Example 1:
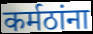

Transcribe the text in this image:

कर्मठांना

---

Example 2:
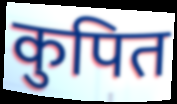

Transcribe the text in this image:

कुपित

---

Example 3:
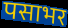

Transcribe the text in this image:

पसाभर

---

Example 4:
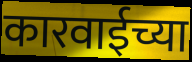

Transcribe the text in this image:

कारवाईच्या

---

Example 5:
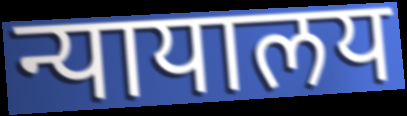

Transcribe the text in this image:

न्यायालय